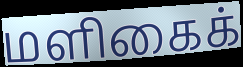
மளிகைக்